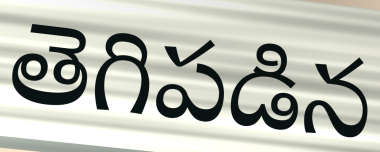
తెగిపడిన